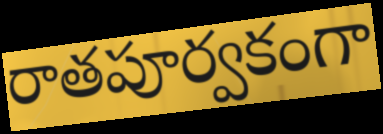
రాతపూర్వకంగా